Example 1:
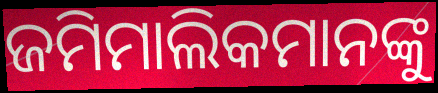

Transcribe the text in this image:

ଜମିମାଲିକମାନଙ୍କୁ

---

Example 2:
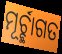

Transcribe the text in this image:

ମୂର୍ଚ୍ଛାଗତ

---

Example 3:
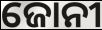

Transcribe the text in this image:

ଜୋନୀ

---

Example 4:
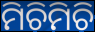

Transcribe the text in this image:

ମିଚିମିଚି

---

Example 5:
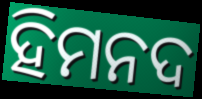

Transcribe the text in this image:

ହିମନଦ